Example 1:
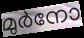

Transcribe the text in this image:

മുർനോ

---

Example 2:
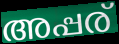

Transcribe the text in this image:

അപ്പര്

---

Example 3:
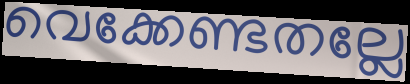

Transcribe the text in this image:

വെക്കേണ്ടതല്ലേ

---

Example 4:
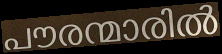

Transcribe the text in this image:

പൗരന്മാരിൽ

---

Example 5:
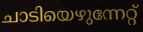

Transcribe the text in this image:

ചാടിയെഴുന്നേറ്റ്